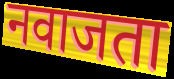
नवाजता